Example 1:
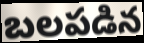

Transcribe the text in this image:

బలపడిన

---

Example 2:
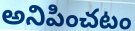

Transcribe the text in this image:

అనిపించటం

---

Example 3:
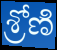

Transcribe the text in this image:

శ్రోణి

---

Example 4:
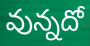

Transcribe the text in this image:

వున్నదో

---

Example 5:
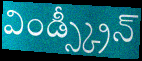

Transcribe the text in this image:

విండ్స్క్రీన్